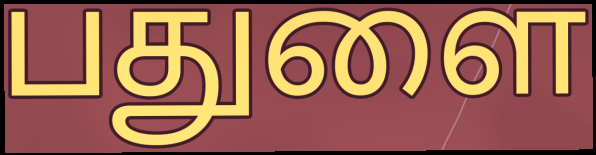
பதுளை